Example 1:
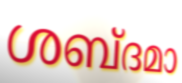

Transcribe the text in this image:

ശബ്ദമാ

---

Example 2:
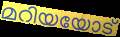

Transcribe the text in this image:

മറിയയോട്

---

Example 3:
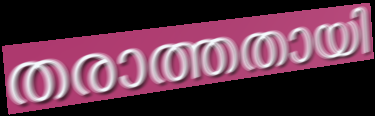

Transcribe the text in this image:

തരാത്തതായി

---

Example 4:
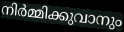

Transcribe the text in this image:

നിർമ്മിക്കുവാനും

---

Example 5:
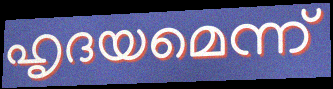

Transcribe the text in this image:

ഹൃദയമെന്ന്